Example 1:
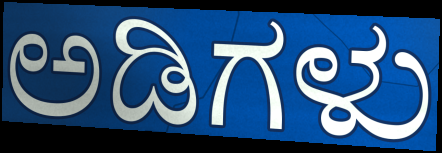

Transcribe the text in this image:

ಅಡಿಗಳು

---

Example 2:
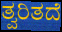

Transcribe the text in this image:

ತ್ವರಿತದೆ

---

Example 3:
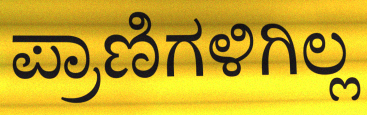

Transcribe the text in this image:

ಪ್ರಾಣಿಗಳಿಗಿಲ್ಲ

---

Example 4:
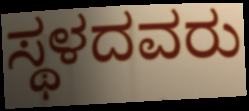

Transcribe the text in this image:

ಸ್ಥಳದವರು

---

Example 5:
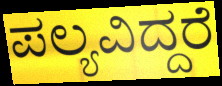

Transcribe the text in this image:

ಪಲ್ಯವಿದ್ದರೆ